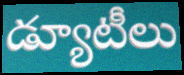
డ్యూటీలు